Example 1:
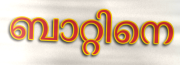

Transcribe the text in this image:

ബാറ്റിനെ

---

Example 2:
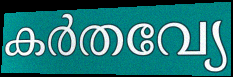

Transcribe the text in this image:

കർതവ്യേ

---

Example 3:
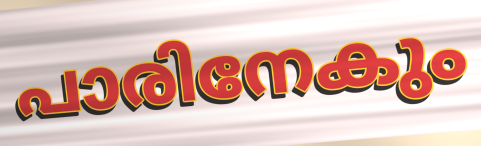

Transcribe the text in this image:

പാരിനേകും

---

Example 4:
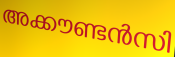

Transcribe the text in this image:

അക്കൗണ്ടൻസി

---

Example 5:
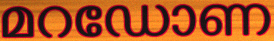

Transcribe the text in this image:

മറഡോണ